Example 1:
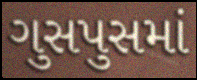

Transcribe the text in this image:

ગુસપુસમાં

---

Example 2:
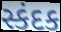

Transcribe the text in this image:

સ્કંદક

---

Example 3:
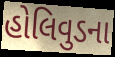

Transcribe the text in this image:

હોલિવુડના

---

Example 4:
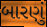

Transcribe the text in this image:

બારણું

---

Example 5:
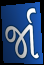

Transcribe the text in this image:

ર્જા